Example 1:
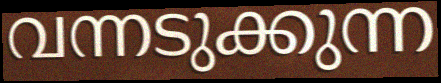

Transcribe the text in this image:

വന്നടുക്കുന്ന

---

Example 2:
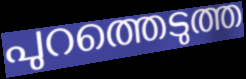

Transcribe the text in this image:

പുറത്തെടുത്ത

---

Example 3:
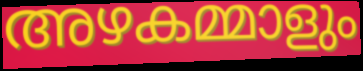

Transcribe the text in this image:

അഴകമ്മാളും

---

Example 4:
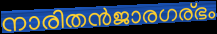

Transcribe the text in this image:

നാരിതൻജാരഗര്ഭം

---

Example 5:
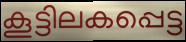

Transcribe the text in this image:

കൂട്ടിലകപ്പെട്ട